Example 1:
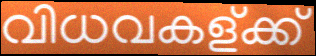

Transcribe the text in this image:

വിധവകള്ക്ക്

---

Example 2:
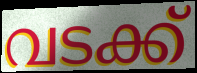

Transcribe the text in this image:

വടക്ക്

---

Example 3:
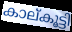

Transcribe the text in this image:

കാല്കൂട്ടി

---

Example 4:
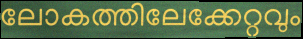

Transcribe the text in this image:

ലോകത്തിലേക്കേറ്റവും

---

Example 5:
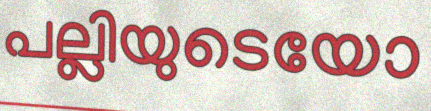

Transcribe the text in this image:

പല്ലിയുടെയോ